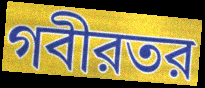
গবীরতর